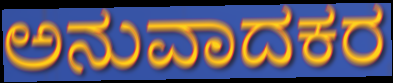
ಅನುವಾದಕರ